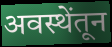
अवस्थेंतून